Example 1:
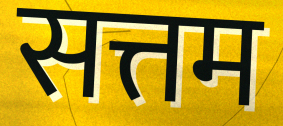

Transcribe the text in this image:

सत्तम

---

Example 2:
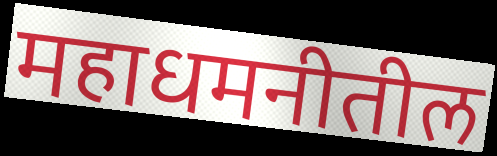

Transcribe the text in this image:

महाधमनीतील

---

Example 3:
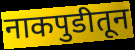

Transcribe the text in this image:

नाकपुडीतून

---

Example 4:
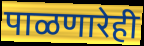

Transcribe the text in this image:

पाळणारेही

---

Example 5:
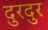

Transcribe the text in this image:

दुरदुर